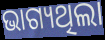
ଭାଗ୍ୟଥିଲା